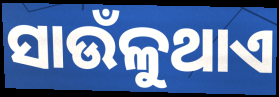
ସାଉଁଳୁଥାଏ